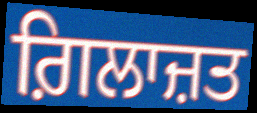
ਗ਼ਿਲਾਜ਼ਤ